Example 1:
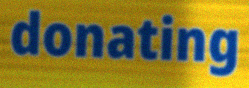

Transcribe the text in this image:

donating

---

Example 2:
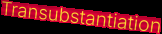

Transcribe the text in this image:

Transubstantiation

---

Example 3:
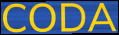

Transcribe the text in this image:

CODA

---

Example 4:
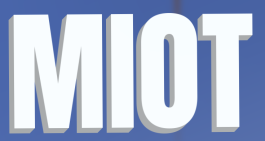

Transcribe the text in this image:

MIOT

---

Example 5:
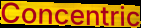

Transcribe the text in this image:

Concentric